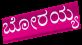
ಬೋರಯ್ಯ